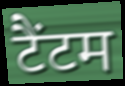
टैंटम